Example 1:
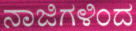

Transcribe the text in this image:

ನಾಜಿಗಳಿಂದ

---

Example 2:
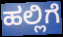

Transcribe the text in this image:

ಹಲ್ಲಿಗೆ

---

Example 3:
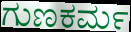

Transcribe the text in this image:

ಗುಣಕರ್ಮ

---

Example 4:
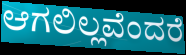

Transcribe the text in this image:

ಆಗಲಿಲ್ಲವೆಂದರೆ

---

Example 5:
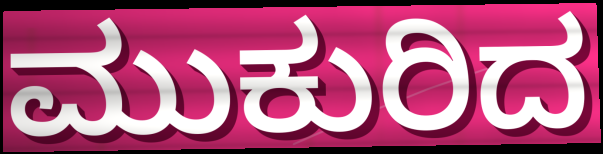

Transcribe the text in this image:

ಮುಕುರಿದ